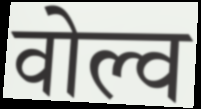
वोल्व